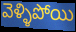
వెళ్ళిపోయి